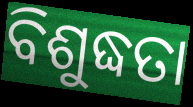
ବିଶୁଦ୍ଧତା